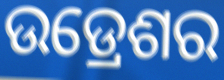
ଉଡ୍ରେଶର